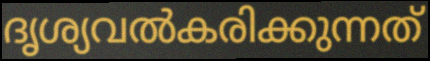
ദൃശ്യവൽകരിക്കുന്നത്